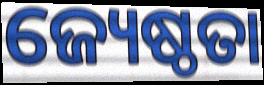
ଜ୍ୟେଷ୍ଠତା